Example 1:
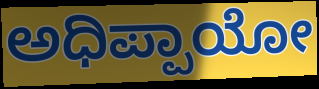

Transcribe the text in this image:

ಅಧಿಪ್ಪಾಯೋ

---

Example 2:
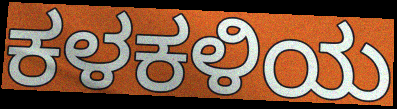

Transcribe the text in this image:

ಕಳಕಳಿಯ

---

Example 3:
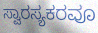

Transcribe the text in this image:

ಸ್ವಾರಸ್ಯಕರವೂ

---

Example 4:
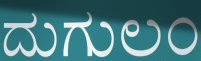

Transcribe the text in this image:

ದುಗುಲಂ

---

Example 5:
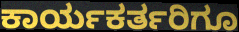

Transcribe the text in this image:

ಕಾರ್ಯಕರ್ತರಿಗೂ